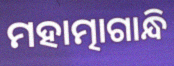
ମହାତ୍ମାଗାନ୍ଧି